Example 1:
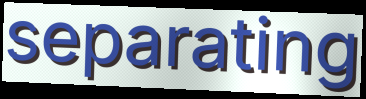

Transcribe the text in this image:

separating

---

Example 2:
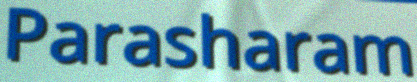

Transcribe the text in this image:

Parasharam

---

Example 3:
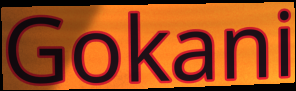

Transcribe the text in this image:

Gokani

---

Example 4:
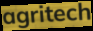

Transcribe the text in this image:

agritech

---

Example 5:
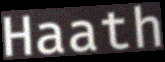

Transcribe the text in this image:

Haath